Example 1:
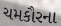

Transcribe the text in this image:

ચમકૌરના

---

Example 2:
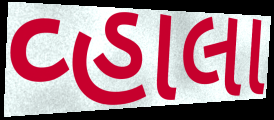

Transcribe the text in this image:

વ્હાલા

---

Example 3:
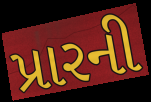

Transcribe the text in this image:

પ્રારની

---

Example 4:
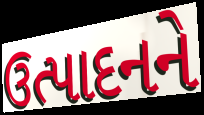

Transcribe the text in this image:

ઉત્પાદનને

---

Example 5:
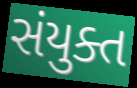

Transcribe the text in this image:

સંયુક્ત